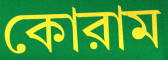
কোরাম